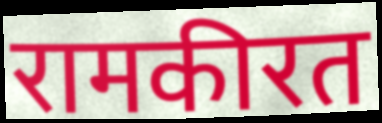
रामकीरत